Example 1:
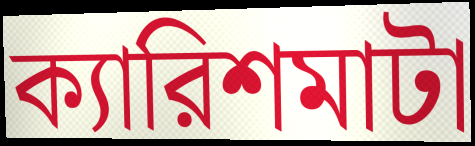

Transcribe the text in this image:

ক্যারিশমাটা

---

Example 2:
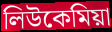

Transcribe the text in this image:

লিউকেমিয়া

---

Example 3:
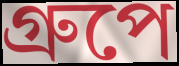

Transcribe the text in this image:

গ্রুপে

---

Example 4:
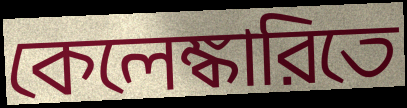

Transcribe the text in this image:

কেলেঙ্কারিতে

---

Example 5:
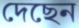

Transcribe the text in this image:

দেছেন